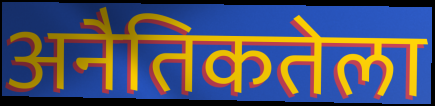
अनैतिकतेला